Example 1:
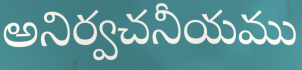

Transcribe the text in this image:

అనిర్వచనీయము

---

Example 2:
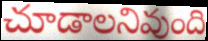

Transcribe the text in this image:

చూడాలనివుంది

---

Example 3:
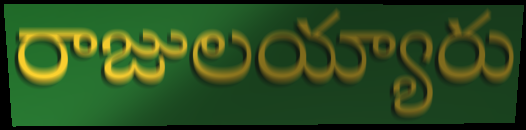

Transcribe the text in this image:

రాజులయ్యారు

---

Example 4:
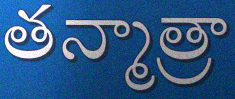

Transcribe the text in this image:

తన్మాత్రా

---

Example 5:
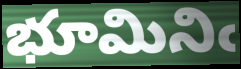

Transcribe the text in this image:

భూమినిఁ